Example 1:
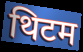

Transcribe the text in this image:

थिटम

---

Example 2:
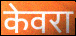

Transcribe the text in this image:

केवरा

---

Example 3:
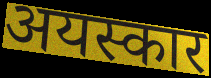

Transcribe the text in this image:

अयस्कार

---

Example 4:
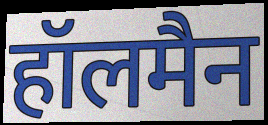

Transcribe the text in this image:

हॉलमैन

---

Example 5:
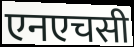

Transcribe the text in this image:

एनएचसी